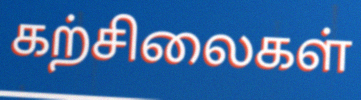
கற்சிலைகள்